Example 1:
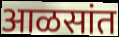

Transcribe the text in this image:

आळसांत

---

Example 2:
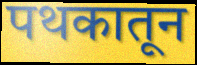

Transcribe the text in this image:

पथकातून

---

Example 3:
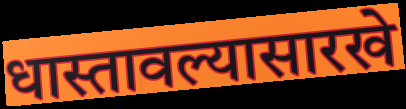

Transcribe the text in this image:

धास्तावल्यासारखे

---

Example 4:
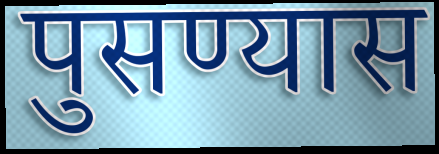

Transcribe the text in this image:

पुसण्यास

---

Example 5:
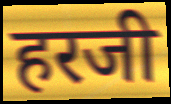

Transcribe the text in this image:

हरजी